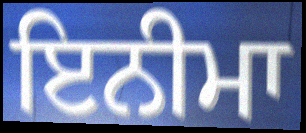
ਇਨੀਮਾ